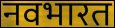
नवभारत